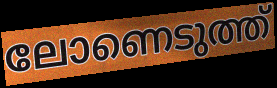
ലോണെടുത്ത്